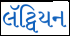
લૅટ્વિયન